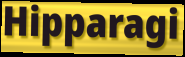
Hipparagi